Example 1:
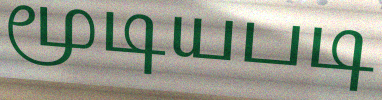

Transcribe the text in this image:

மூடியபடி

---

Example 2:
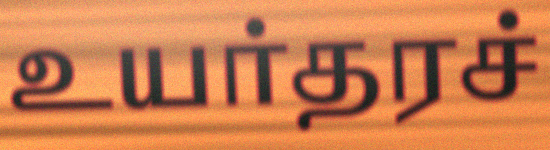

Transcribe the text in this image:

உயர்தரச்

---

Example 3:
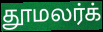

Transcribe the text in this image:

தூமலர்க்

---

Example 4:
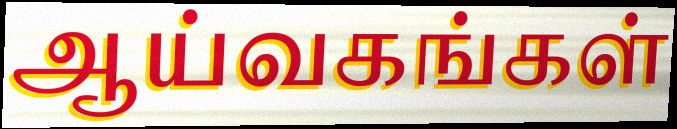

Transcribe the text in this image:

ஆய்வகங்கள்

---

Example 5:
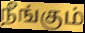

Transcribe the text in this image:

நீங்கும்